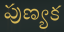
పుణ్యక